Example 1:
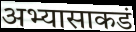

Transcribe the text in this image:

अभ्यासाकडं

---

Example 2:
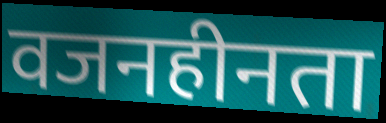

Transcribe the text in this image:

वजनहीनता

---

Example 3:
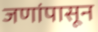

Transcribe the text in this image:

जणांपासून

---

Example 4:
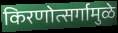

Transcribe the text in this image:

किरणोत्सर्गामुळे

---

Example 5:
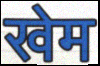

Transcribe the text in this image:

खेम